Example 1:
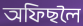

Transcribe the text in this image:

অফিছলৈ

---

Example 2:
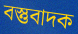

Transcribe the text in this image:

বস্তুবাদক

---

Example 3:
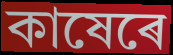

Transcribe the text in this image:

কাষেৰে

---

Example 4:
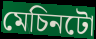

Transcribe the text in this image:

মেচিনটো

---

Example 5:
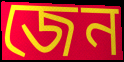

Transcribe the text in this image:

জেন